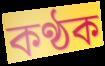
কণ্ঠক